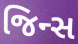
જિન્સ